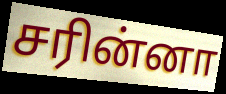
சரின்னா